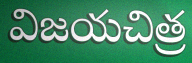
విజయచిత్ర